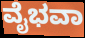
ವೈಭವಾ